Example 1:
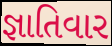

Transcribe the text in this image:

જ્ઞાતિવાર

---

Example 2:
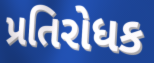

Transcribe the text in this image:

પ્રતિરોધક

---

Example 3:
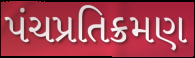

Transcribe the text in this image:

પંચપ્રતિક્રમણ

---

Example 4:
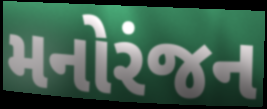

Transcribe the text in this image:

મનોરંજન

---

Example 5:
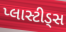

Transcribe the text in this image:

પ્લાસ્ટીડ્સ